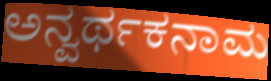
ಅನ್ವರ್ಥಕನಾಮ